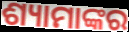
ଶ୍ୟାମାଙ୍କର